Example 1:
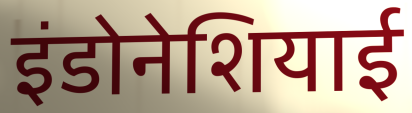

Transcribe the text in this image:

इंडोनेशियाई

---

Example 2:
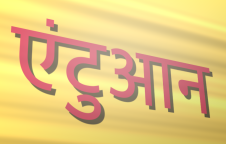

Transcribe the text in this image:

एंटुआन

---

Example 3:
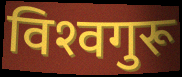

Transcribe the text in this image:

विश्वगुरू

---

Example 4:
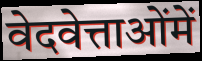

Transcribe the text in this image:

वेदवेत्ताओंमें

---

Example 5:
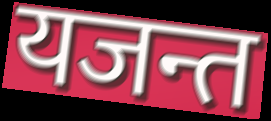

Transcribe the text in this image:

यजन्त